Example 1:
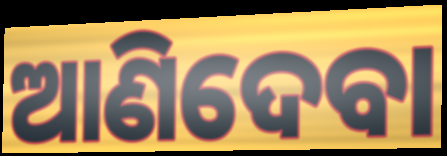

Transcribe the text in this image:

ଆଣିଦେବା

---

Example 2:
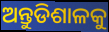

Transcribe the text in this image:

ଅନ୍ତୁଡିଶାଳକୁ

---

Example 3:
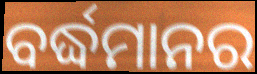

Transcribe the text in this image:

ବର୍ଦ୍ଧମାନର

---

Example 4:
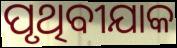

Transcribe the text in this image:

ପୃଥିବୀଯାକ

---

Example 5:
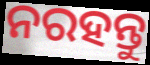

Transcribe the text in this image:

ନରହନ୍ତୁ